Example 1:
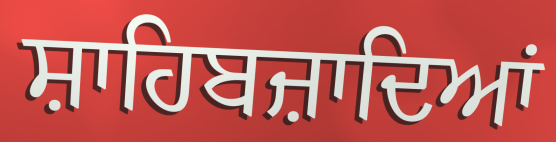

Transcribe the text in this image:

ਸ਼ਾਹਿਬਜ਼ਾਦਿਆਂ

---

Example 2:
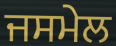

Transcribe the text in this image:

ਜਸਮੇਲ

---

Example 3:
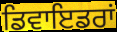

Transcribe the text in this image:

ਡਿਵਾਇਡਰਾਂ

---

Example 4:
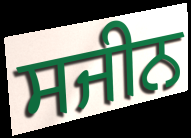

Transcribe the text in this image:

ਸਜੀਨ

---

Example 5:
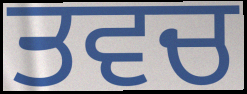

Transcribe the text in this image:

ਤਵਚ